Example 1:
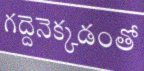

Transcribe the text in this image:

గద్దెనెక్కడంతో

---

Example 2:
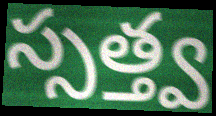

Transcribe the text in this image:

స్సత్త్వ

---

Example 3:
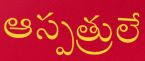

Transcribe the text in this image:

ఆస్పత్రులే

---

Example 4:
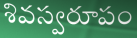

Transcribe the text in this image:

శివస్వరూపం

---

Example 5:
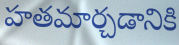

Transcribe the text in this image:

హతమార్చడానికి